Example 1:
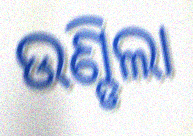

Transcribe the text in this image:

ଉଣ୍ଡିଲା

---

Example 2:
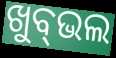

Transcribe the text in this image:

ଖୁବ୍‌ଭଲ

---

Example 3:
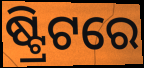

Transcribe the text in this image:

ଷ୍ଟ୍ରିଟରେ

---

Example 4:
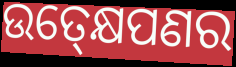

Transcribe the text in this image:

ଉତ୍କ୍ଷେପଣର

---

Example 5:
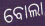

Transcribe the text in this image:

ବୋଲା